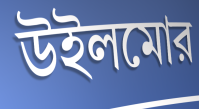
উইলমোর